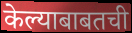
केल्याबाबतची